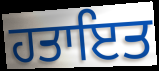
ਹਤਾਇਤ